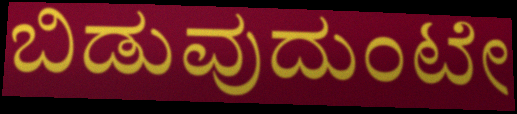
ಬಿಡುವುದುಂಟೇ